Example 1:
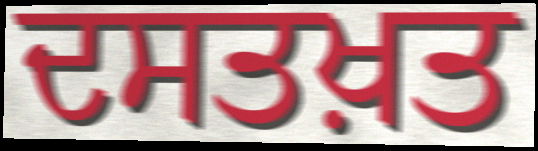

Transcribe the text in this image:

ਦਸਤਖ਼ਤ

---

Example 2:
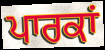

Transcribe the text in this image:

ਪਾਰਕਾਂ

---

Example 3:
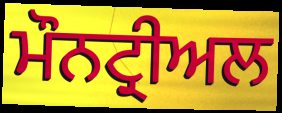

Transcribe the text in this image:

ਮੌਨਟ੍ਰੀਅਲ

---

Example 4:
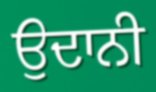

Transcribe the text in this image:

ਉਦਾਨੀ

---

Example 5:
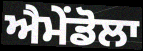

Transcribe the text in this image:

ਐਮੇਂਡੋਲਾ